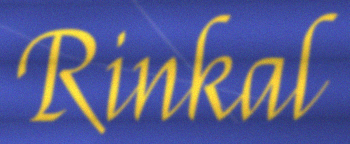
Rinkal